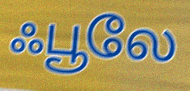
ஃபூலே